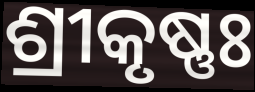
ଶ୍ରୀକୃଷ୍ଣଃ